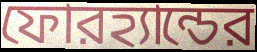
ফোরহ্যান্ডের